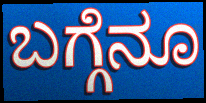
ಬಗ್ಗೆನೂ